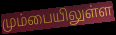
மும்பையிலுள்ள